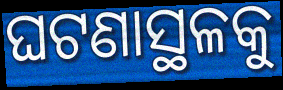
ଘଟଣାସ୍ଥଳକୁ